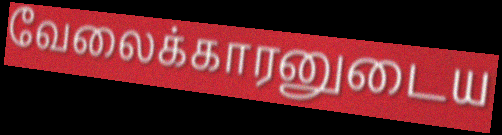
வேலைக்காரனுடைய